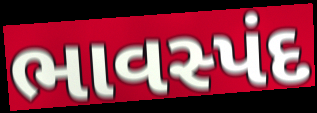
ભાવસ્પંદ